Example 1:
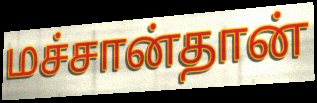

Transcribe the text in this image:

மச்சான்தான்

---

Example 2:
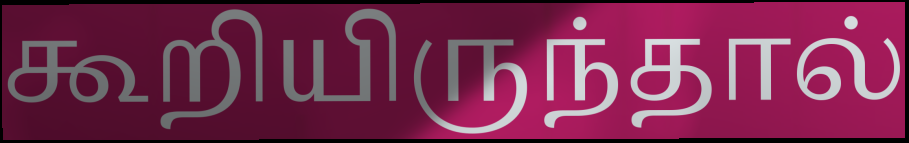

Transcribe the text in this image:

கூறியிருந்தால்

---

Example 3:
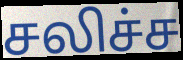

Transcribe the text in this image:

சலிச்ச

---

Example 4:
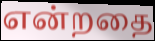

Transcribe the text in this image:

என்றதை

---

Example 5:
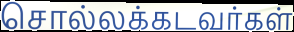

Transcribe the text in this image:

சொல்லக்கடவர்கள்